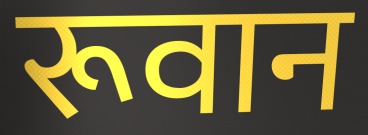
रूवान